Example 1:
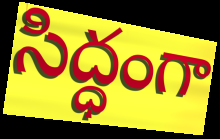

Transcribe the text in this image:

సిద్ధంగా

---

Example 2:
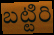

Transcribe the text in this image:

బట్టిరి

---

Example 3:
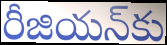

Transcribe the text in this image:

రీజియన్‌కు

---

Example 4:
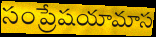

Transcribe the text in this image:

సంప్రేషయామాస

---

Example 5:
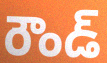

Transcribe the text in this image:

రౌండ్